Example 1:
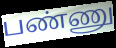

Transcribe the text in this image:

பண்ணு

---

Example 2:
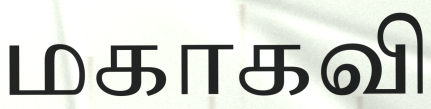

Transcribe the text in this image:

மகாகவி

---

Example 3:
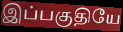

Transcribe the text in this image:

இப்பகுதியே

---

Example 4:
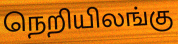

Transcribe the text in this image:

நெறியிலங்கு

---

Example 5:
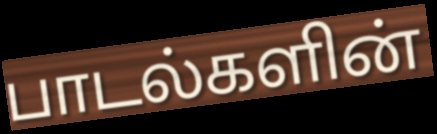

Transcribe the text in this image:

பாடல்களின்